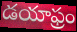
డయాఫ్రం